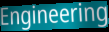
Engineering